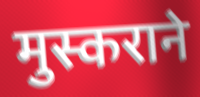
मुस्कराने